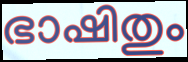
ഭാഷിതും